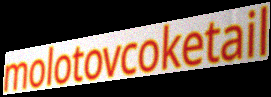
molotovcoketail